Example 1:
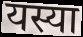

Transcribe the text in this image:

यस्या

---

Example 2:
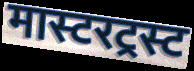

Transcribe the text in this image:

मास्टरट्रस्ट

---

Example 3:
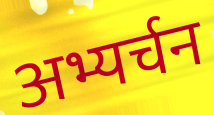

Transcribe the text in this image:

अभ्यर्चन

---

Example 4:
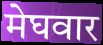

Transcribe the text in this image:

मेघवार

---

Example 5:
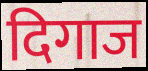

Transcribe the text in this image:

दिगाज